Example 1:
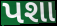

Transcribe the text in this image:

પશા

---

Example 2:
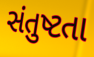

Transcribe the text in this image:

સંતુષ્ટતા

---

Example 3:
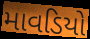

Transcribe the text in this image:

માવડિયો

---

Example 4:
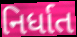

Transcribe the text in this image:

નિર્ધાત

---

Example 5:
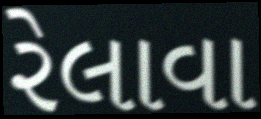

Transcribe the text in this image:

રેલાવા